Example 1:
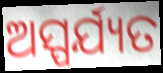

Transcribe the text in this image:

ଅସ୍ପର୍ଯ୍ୟତ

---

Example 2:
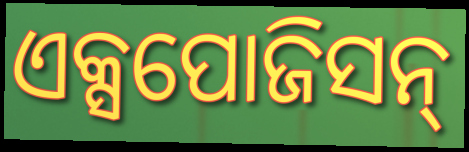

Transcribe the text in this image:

ଏକ୍ସପୋଜିସନ୍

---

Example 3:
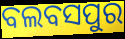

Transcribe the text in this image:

ବଲବସପୁର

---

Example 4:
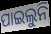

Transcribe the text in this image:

ପାଇଲୁନି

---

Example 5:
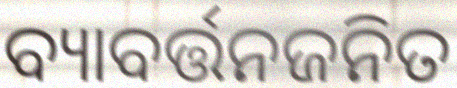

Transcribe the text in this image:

ବ୍ୟାବର୍ତ୍ତନଜନିତ